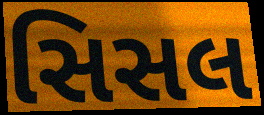
સિસલ